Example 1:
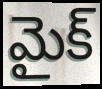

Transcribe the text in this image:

మైక్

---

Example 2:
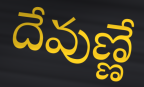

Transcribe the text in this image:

దేవుణ్ణే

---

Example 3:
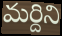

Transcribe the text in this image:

మర్దిని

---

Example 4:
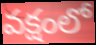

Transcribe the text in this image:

వక్షంలో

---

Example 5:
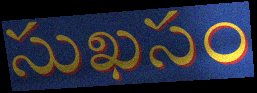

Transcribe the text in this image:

సుఖసం